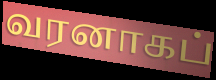
வரனாகப்